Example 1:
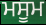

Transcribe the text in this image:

ਮਸੂਮ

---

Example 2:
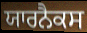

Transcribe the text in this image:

ਯਾਰਨੈਕਸ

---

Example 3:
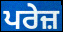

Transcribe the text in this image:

ਪਰੇਜ਼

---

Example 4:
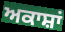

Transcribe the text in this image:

ਅਕਾਸ਼ਾਂ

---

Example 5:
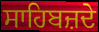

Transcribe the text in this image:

ਸਾਹਿਬਜ਼ਦੇ